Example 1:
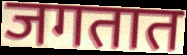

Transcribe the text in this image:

जगतात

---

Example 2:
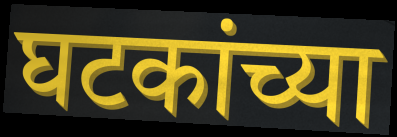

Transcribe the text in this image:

घटकांच्या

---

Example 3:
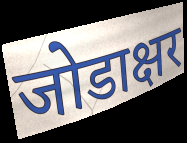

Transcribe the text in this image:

जोडाक्षर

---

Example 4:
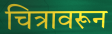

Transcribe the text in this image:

चित्रावरून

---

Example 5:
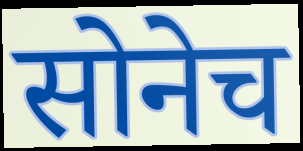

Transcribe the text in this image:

सोनेच